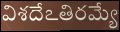
విశదేఽతిరమ్యే